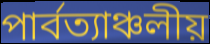
পার্বত্যাঞ্চলীয়